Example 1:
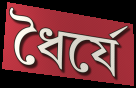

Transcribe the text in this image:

ধৈর্যে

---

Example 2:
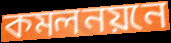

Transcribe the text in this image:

কমলনয়নে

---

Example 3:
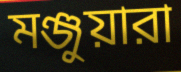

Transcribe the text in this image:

মঞ্জুয়ারা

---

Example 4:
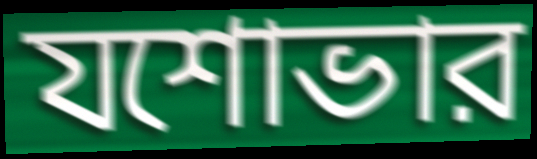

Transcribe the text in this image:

যশোভার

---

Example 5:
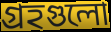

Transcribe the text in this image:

গ্রহগুলো